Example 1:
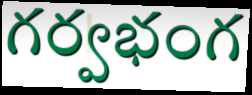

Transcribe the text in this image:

గర్వభంగ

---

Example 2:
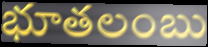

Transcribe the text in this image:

భూతలంబు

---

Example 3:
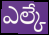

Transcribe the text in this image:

ఎల్కే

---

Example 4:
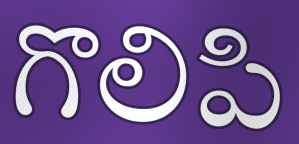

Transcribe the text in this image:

గొలిపి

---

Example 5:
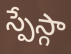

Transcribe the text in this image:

స్పేస్గా